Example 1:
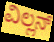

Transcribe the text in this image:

ವಿಲ್ಲನ್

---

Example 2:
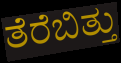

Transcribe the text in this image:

ತೆರೆಬಿತ್ತು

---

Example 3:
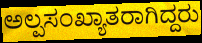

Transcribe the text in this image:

ಅಲ್ಪಸಂಖ್ಯಾತರಾಗಿದ್ದರು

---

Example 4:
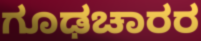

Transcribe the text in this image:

ಗೂಢಚಾರರ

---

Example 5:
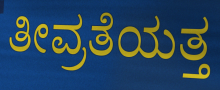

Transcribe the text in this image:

ತೀವ್ರತೆಯತ್ತ